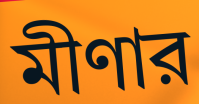
মীণার